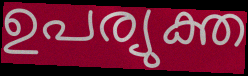
ഉപര്യുക്ത